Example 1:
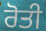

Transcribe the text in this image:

ਰੋਤੀ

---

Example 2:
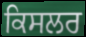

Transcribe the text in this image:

ਕਿਸਲਰ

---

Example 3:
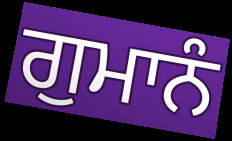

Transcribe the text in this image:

ਗੁਮਾਨੰ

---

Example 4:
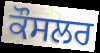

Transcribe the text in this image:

ਕੌਸਲਰ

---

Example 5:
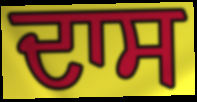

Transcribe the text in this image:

ਦਾਸ